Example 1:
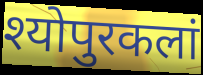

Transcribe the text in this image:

श्योपुरकलां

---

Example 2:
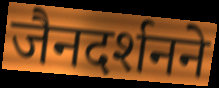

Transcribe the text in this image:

जैनदर्शनने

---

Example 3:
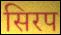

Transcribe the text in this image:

सिरप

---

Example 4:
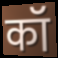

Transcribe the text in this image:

कॉ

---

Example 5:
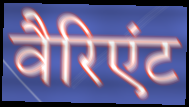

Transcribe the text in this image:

वैरिएंट